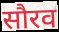
सौरव